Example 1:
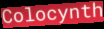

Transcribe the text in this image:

Colocynth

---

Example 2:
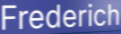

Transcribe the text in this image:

Frederich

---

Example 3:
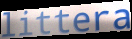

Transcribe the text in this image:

littera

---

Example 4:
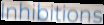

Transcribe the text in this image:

Inhibitions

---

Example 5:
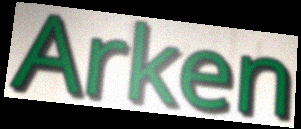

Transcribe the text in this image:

Arken